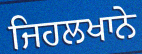
ਜਿਹਲਖਾਨੇ